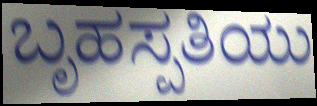
ಬೃಹಸ್ಪತಿಯು